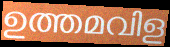
ഉത്തമവിള